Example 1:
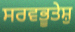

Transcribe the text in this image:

ਸਰਵਭੂਤੇਸ਼ੁ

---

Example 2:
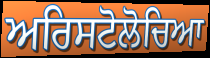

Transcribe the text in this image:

ਅਰਿਸਟੋਲੋਚਿਆ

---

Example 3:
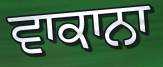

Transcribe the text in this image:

ਵਾਕਾਨਾ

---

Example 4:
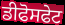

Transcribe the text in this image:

ਡੀਫੋਸਫੇਟ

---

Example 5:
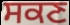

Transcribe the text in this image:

ਸਕਣ